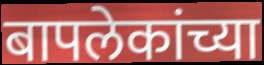
बापलेकांच्या